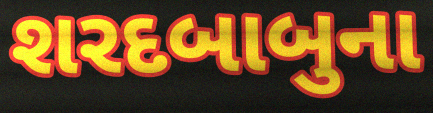
શરદબાબુના